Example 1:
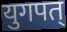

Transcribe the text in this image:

युगपत्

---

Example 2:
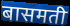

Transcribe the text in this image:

बासमती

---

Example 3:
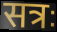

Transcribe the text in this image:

सत्रः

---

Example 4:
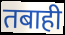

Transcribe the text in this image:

तबाही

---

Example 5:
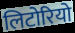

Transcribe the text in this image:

लिटोरियो